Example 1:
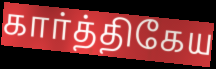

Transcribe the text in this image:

கார்த்திகேய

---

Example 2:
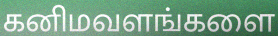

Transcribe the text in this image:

கனிமவளங்களை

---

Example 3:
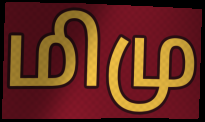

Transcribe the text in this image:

மிமு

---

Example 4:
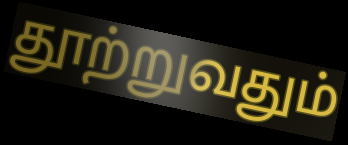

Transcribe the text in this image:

தூற்றுவதும்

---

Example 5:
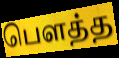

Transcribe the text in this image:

பெளத்த